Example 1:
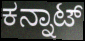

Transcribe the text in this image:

ಕನ್ನಾಟ್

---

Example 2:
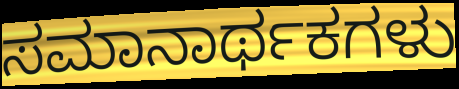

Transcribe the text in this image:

ಸಮಾನಾರ್ಥಕಗಳು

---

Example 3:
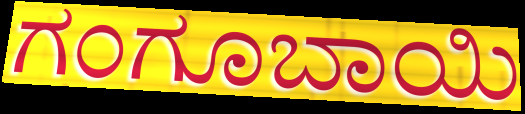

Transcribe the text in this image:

ಗಂಗೂಬಾಯಿ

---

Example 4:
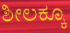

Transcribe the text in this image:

ಶೀಲಕ್ಕೂ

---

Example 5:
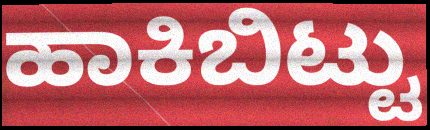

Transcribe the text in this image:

ಹಾಕಿಬಿಟ್ಟು